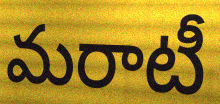
మరాటీ